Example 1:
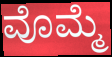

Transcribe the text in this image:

ವೊಮ್ಮೆ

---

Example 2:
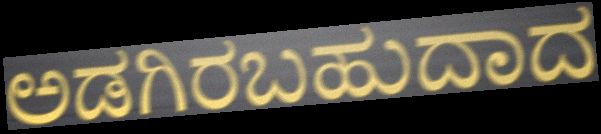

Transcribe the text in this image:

ಅಡಗಿರಬಹುದಾದ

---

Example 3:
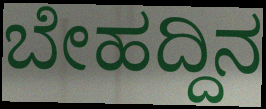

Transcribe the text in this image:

ಬೇಹದ್ದಿನ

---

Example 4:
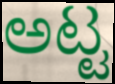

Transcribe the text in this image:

ಅಟ್ಟ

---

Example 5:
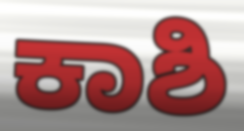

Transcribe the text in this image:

ಕಾಶಿ